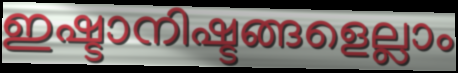
ഇഷ്ടാനിഷ്ടങ്ങളെല്ലാം